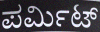
ಪರ್ಮಿಟ್